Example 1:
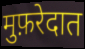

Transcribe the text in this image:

मुफ़रेदात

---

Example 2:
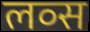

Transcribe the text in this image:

लव्स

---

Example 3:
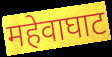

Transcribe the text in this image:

महेवाघाट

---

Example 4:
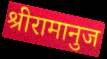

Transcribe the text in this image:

श्रीरामानुज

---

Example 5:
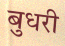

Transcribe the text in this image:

बुधरी